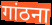
गांठना